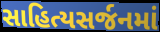
સાહિત્યસર્જનમાં